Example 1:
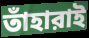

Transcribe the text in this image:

তাঁহারাই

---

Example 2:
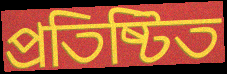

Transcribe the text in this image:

প্রতিষ্টিত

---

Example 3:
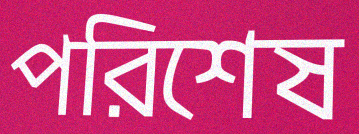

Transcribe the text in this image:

পরিশেষ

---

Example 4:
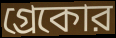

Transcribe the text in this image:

গ্রেকোর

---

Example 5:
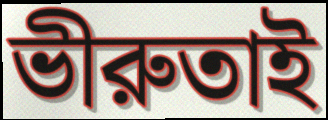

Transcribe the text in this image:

ভীরুতাই